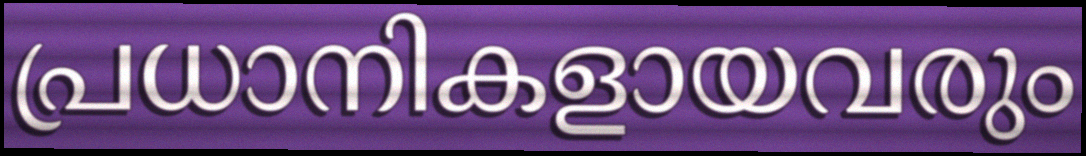
പ്രധാനികളായവരും